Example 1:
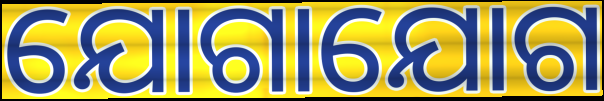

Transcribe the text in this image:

ଯୋଗାଯୋଗ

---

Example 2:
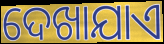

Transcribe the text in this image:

ଦେଖାଯାଏ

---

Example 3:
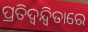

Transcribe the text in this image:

ପ୍ରତିଦ୍ୱନ୍ଦ୍ବିତାରେ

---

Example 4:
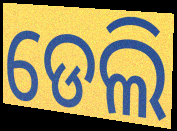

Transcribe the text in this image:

ଡେଲି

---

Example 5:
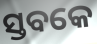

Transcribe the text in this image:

ସ୍ତବକେ